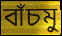
বাঁচমু